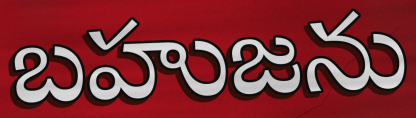
బహుజను